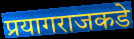
प्रयागराजकडे